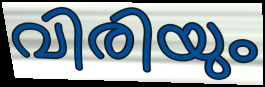
വിരിയും